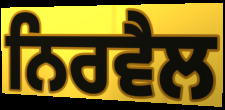
ਨਿਰਵੈਲ